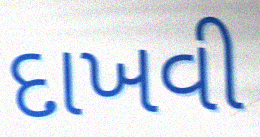
દાખવી